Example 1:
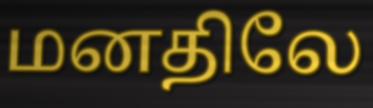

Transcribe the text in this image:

மனதிலே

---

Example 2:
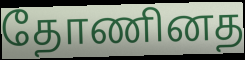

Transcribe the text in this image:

தோணினத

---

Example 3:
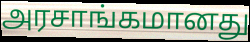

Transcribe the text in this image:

அரசாங்கமானது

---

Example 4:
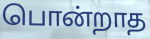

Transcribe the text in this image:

பொன்றாத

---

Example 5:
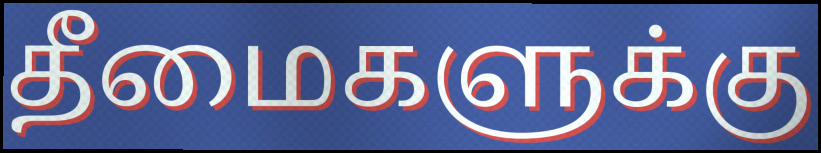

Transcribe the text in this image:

தீமைகளுக்கு